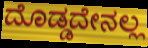
ದೊಡ್ಡದೇನಲ್ಲ